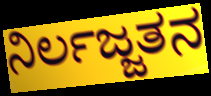
ನಿರ್ಲಜ್ಜತನ